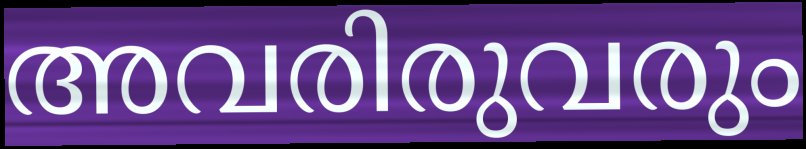
അവരിരുവരും